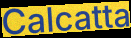
Calcatta